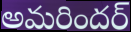
అమరిందర్